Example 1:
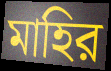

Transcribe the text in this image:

মাহির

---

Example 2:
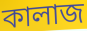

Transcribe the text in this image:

কালাজ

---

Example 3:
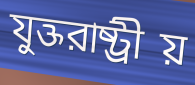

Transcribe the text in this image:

যুক্তরাষ্ট্রীয়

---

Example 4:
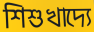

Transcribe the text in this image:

শিশুখাদ্যে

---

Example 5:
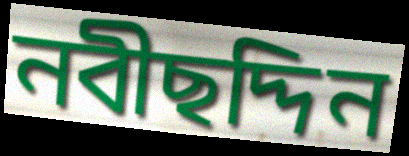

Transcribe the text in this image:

নবীছদ্দিন